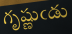
గృష్ణుఁడు